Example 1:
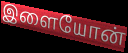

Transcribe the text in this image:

இளையோன்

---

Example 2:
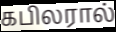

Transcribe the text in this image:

கபிலரால்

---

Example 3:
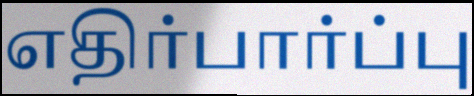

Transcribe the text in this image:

எதிர்பார்ப்பு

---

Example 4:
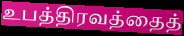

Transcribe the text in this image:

உபத்திரவத்தைத்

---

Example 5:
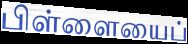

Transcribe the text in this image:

பிள்ளையைப்